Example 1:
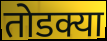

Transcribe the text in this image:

तोडक्या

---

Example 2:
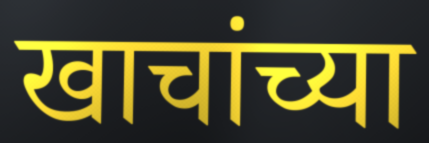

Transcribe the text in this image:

खाचांच्या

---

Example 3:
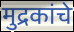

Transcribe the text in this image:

मुद्रकांचे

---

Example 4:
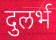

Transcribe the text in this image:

दुलर्भ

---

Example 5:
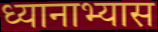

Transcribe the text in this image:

ध्यानाभ्यास